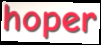
hoper